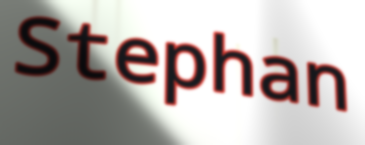
Stephan